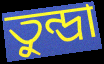
তুন্দ্রা